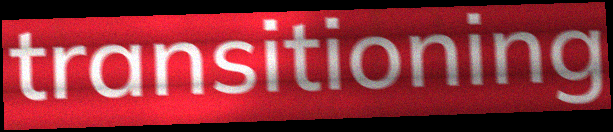
transitioning